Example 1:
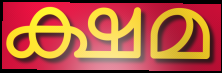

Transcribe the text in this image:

ക്ഷമ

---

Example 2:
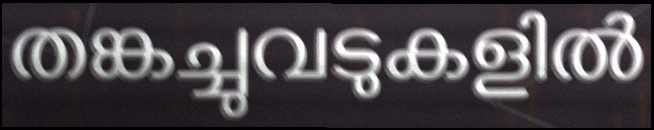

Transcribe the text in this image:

തങ്കച്ചുവടുകളിൽ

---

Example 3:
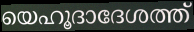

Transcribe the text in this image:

യെഹൂദാദേശത്ത്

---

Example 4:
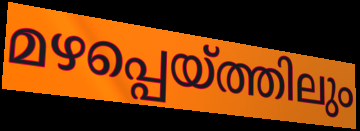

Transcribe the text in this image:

മഴപ്പെയ്ത്തിലും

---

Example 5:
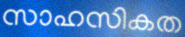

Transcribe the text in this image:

സാഹസികത